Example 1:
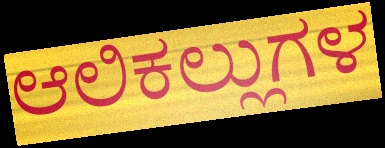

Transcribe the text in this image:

ಆಲಿಕಲ್ಲುಗಳ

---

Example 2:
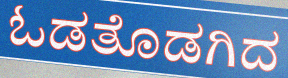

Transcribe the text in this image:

ಓಡತೊಡಗಿದ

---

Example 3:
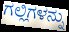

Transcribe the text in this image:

ಗಲ್ಲಿಗಳನ್ನು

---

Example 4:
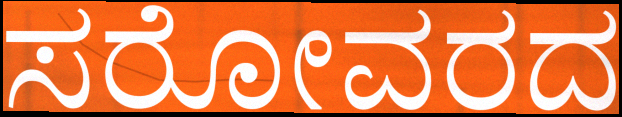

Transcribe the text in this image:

ಸರೋವರದ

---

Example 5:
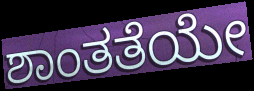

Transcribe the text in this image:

ಶಾಂತತೆಯೇ